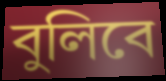
বুলিবে